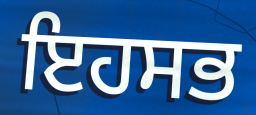
ਇਹਸਭ